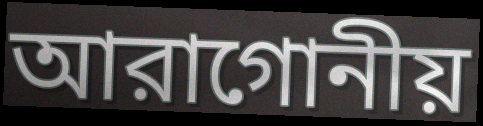
আরাগোনীয়